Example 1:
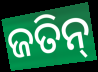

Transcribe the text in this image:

ଜତିନ୍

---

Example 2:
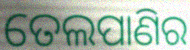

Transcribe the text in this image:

ତେଲପାଣିର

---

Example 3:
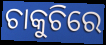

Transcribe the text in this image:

ଚାକୁଚିରେ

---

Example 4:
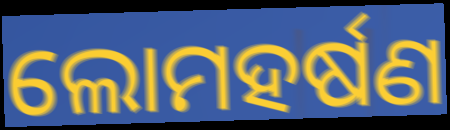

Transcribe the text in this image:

ଲୋମହର୍ଷଣ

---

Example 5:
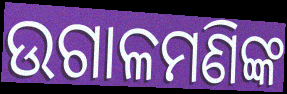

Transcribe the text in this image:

ଉଗାଳମଣିଙ୍କ